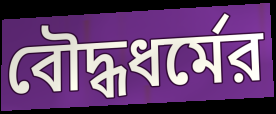
বৌদ্ধধর্মের